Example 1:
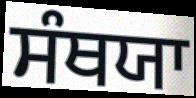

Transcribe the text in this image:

ਸੰਥਯਾ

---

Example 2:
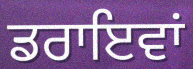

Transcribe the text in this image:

ਡਰਾਇਵਾਂ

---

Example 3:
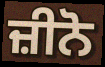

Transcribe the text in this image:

ਜ਼ੀਨੋ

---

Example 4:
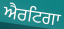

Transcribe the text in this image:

ਐਰਟਿਗਾ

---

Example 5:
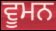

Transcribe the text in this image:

ਵੂਮਨ